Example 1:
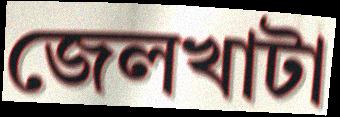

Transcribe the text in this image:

জেলখাটা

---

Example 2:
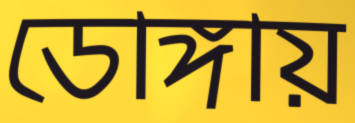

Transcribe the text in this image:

ডোঙ্গায়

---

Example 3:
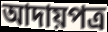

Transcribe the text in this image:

আদায়পত্র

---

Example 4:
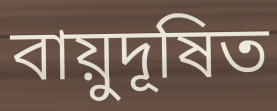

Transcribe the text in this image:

বায়ুদূষিত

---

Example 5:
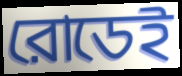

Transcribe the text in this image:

রোডেই